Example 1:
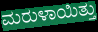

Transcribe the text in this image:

ಮರುಳಾಯಿತ್ತು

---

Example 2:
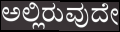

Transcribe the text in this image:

ಅಲ್ಲಿರುವುದೇ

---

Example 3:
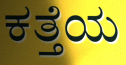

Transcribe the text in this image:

ಕತ್ತೆಯ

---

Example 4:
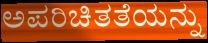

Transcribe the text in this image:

ಅಪರಿಚಿತತೆಯನ್ನು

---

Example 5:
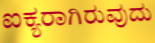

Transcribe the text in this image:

ಐಕ್ಯರಾಗಿರುವುದು